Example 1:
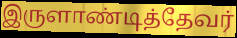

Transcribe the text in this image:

இருளாண்டித்தேவர்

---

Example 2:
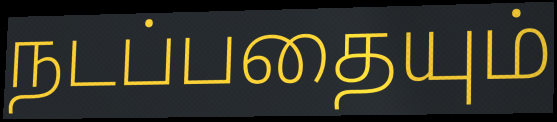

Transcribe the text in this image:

நடப்பதையும்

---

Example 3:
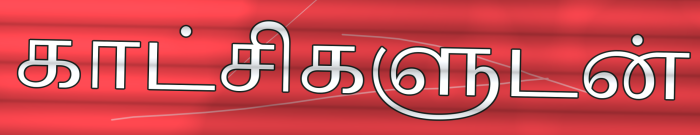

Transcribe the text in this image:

காட்சிகளுடன்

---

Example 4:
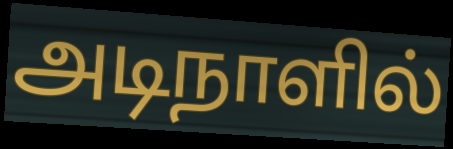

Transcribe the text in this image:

அடிநாளில்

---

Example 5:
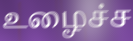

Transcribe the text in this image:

உழைச்ச